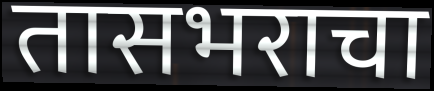
तासभराचा